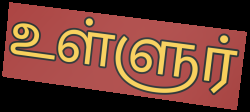
உள்ளுர்